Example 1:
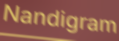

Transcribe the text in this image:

Nandigram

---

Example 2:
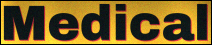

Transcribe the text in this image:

Medical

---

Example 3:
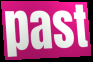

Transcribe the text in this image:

past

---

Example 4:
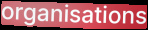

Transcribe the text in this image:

organisations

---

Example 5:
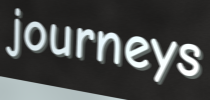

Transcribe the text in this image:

journeys